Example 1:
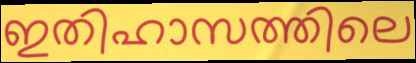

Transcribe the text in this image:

ഇതിഹാസത്തിലെ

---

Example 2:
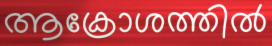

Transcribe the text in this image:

ആക്രോശത്തിൽ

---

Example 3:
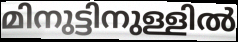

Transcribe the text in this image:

മിനുട്ടിനുള്ളിൽ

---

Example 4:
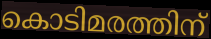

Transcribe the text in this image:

കൊടിമരത്തിന്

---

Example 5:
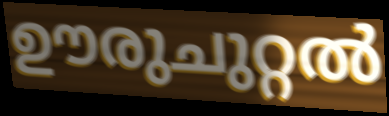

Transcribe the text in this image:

ഊരുചുറ്റൽ